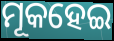
ମୂକହେଇ